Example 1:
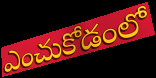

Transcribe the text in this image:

ఎంచుకోడంలో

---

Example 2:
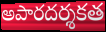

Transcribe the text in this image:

అపారదర్శకత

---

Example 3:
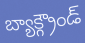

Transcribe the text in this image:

బ్యాక్గ్రౌండ్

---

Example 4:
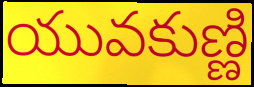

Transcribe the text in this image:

యువకుణ్ణి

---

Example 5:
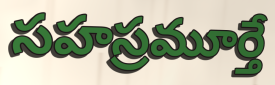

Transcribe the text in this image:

సహస్రమూర్తే